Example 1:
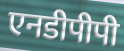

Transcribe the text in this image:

एनडीपीपी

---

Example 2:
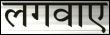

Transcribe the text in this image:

लगवाए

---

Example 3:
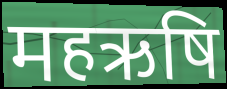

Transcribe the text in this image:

महऋषि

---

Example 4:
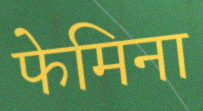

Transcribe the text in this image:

फेमिना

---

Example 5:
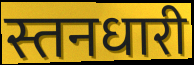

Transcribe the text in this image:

स्‍तनधारी